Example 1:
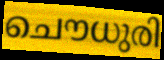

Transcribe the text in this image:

ചൌധുരി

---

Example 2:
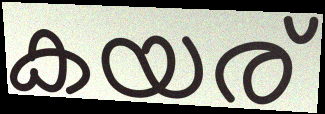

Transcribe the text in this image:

കയര്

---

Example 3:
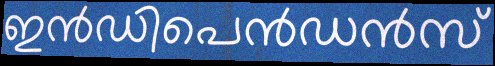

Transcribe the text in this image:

ഇൻഡിപെൻഡൻസ്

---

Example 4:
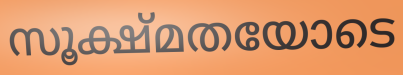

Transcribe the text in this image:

സൂക്ഷ്മതയോടെ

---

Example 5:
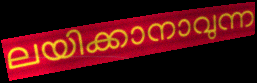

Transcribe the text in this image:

ലയിക്കാനാവുന്ന